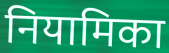
नियामिका